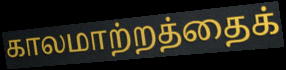
காலமாற்றத்தைக்